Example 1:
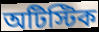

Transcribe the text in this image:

অটিস্টিক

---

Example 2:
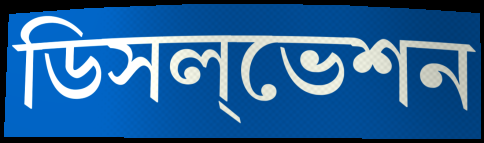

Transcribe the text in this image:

ডিসল্ভেশন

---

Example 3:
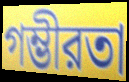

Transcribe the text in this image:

গম্ভীরতা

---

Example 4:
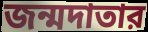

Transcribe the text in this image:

জন্মদাতার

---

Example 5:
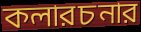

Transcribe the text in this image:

কলারচনার